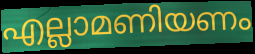
എല്ലാമണിയണം